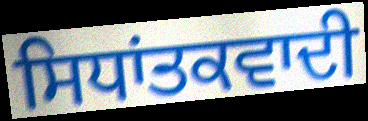
ਸਿਧਾਂਤਕਵਾਦੀ